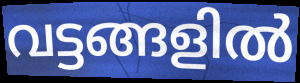
വട്ടങ്ങളിൽ